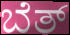
ಬೆತ್